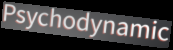
Psychodynamic